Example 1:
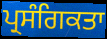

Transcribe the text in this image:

ਪ੍ਰਸੰਗਿਕਤਾ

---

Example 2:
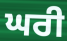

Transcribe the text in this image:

ਘਰੀ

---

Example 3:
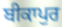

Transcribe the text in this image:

ਬੀਕਾਪੁਰ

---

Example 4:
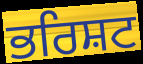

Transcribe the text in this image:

ਭਰਿਸ਼ਟ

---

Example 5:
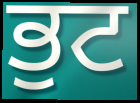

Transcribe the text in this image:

ਭੁਟ